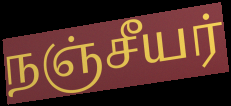
நஞ்சீயர்